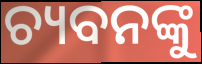
ଚ୍ୟବନଙ୍କୁ